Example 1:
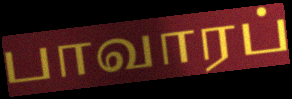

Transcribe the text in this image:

பாவாரப்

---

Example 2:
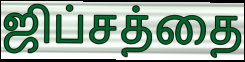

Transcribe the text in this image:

ஜிப்சத்தை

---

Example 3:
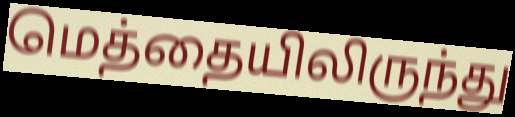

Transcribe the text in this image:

மெத்தையிலிருந்து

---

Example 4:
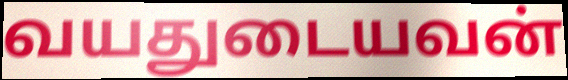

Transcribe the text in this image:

வயதுடையவன்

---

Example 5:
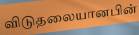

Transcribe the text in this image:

விடுதலையானபின்